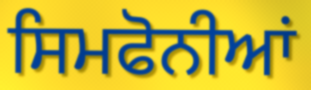
ਸਿਮਫੋਨੀਆਂ